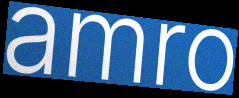
amro